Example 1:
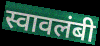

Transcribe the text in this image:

स्वावलंबी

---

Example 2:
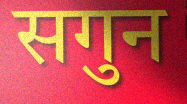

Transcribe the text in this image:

सगुन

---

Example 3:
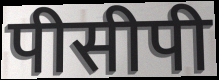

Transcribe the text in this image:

पीसीपी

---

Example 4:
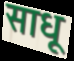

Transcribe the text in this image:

साधू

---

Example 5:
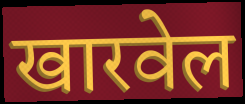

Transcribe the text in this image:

खारवेल